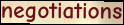
negotiations